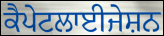
ਕੈਪੇਟਲਾਈਜੇਸ਼ਨ